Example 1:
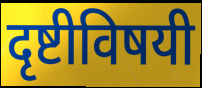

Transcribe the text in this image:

दृष्टीविषयी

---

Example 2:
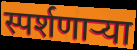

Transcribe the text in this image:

स्पर्शणाऱ्या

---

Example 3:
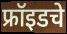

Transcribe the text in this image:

फ्रॉइडचे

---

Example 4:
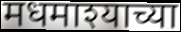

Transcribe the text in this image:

मधमाश्याच्या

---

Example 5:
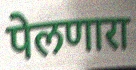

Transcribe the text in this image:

पेलणारा